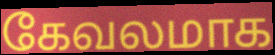
கேவலமாக